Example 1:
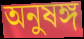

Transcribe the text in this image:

অনুষঙ্গ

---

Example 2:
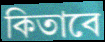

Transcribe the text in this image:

কিতাবে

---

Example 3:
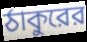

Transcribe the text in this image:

ঠাকুরের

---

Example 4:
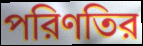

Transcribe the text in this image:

পরিণতির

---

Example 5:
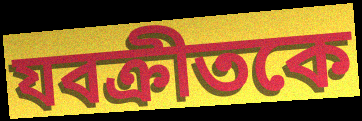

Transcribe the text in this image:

যবক্রীতকে